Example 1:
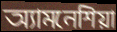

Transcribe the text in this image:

অ্যামনেশিয়া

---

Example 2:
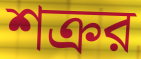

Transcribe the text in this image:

শক্রর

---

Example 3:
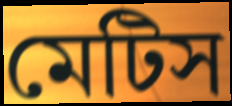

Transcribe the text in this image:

মেটিস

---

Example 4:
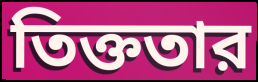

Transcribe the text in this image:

তিক্ততার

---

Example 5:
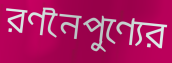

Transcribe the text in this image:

রণনৈপুণ্যের